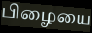
பிழையை